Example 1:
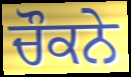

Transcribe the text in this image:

ਚੌਕਨੇ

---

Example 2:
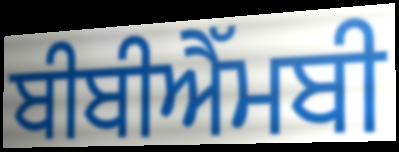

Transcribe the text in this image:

ਬੀਬੀਐੱਮਬੀ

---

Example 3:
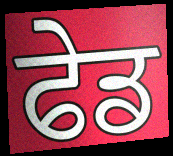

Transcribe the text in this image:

ਫੇਡ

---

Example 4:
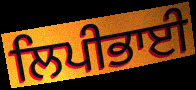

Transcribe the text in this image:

ਲਿਪੀਭਾਈ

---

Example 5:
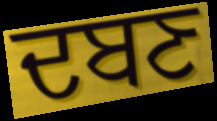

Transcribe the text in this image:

ਦਬਣ